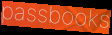
passbooks